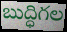
బుద్ధిగల